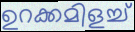
ഉറക്കമിളച്ച്